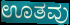
ಊತವು